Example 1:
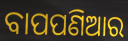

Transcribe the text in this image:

ବାପପଣିଆର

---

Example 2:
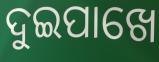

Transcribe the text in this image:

ଦୁଇପାଖେ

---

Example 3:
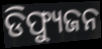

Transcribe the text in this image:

ଡିଫ୍ୟୁଜନ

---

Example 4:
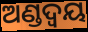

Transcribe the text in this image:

ଅଣ୍ଡଦ୍ୱୟ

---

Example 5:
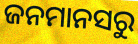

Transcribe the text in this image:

ଜନମାନସରୁ